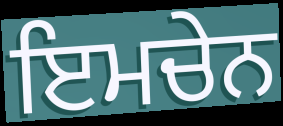
ਇਮਚੇਨ